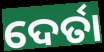
ଦେର୍ତା